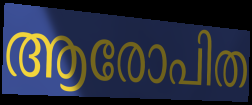
ആരോപിത